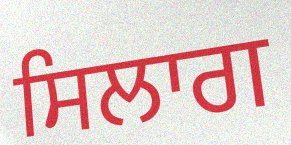
ਸਿਲਾਗ